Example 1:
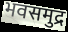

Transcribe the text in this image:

भवसमुद्र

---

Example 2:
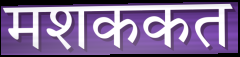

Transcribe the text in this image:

मशककत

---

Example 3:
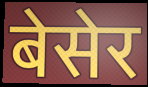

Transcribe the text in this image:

बेसेर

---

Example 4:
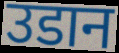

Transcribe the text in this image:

उडान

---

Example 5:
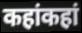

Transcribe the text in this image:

कहांकहां